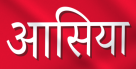
आसिया